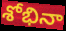
శోభినా